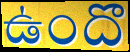
ఉందొ